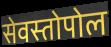
सेवस्तोपोल